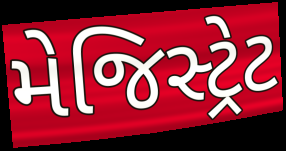
મેજિસ્ટ્રેટ